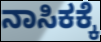
ನಾಸಿಕಕ್ಕೆ